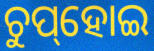
ଚୁପ୍‌ହୋଇ